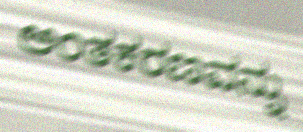
ಅಂತಕರಣವನ್ನು